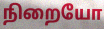
நிறையோ